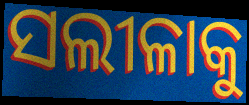
ସଲୀଳାକୁ